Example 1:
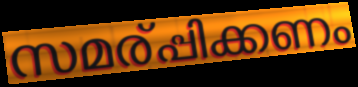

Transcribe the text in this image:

സമര്പ്പിക്കണം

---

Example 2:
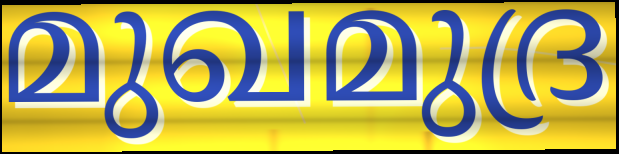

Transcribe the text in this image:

മുഖമുദ്ര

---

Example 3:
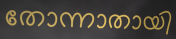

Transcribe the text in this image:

തോന്നാതായി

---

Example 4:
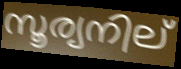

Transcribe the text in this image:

സൂര്യനില്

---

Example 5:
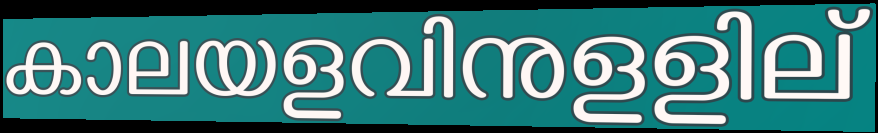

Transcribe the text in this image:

കാലയളവിനുളളില്